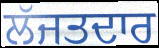
ਲੱਜਤਦਾਰ